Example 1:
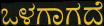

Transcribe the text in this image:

ಒಳಗಾಗದೆ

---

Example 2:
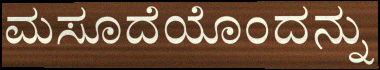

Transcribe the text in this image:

ಮಸೂದೆಯೊಂದನ್ನು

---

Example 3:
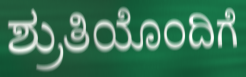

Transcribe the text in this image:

ಶ್ರುತಿಯೊಂದಿಗೆ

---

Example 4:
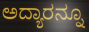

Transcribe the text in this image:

ಅದ್ಯಾರನ್ನೂ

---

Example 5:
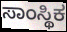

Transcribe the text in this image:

ಸಾಂಸ್ಥಿಕ